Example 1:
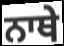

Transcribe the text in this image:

ਨਾਥੇ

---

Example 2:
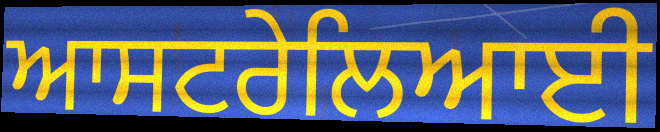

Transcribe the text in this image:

ਆਸਟਰੇਲਿਆਈ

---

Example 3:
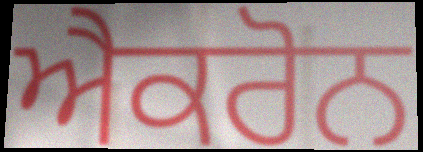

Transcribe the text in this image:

ਐਕਰੋਨ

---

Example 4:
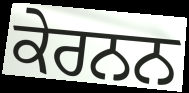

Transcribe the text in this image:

ਕੇਰਨਨ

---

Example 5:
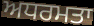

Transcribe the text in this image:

ਅਧਰਮਤਾ